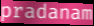
pradanam